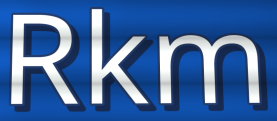
Rkm